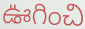
ఊగించి